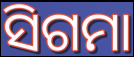
ସିଗମା